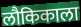
लौकिकाला